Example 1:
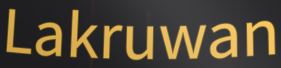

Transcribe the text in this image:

Lakruwan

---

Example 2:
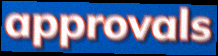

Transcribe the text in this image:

approvals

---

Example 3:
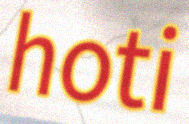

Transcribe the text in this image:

hoti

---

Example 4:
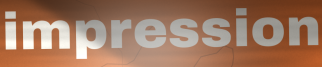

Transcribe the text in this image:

impression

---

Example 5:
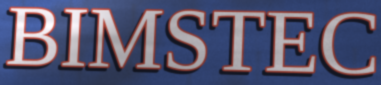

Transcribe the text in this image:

BIMSTEC